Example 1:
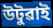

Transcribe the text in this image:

উটুৱাই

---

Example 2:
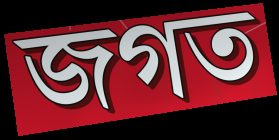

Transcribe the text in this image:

জগত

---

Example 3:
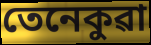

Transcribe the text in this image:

তেনেকুৱা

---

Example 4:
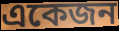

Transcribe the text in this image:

একেজন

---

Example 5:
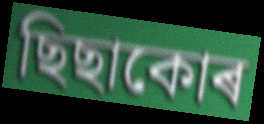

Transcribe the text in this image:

ছিছাকোৰ